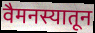
वैमनस्यातून